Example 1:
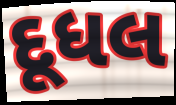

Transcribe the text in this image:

દૂધલ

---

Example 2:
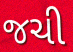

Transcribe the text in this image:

જચી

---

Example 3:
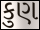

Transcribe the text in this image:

કુણ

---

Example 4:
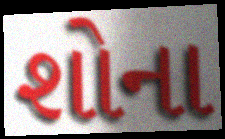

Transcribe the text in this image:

શોના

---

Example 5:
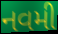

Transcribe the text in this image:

નવમી